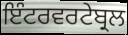
ਇੰਟਰਵਰਟੇਬ੍ਰਲ